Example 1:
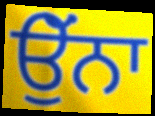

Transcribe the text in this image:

ਉਂੱਨਾ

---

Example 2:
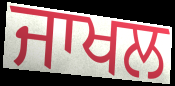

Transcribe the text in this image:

ਜਾਖਲ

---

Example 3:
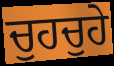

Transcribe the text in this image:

ਚੁਹਚੁਹੇ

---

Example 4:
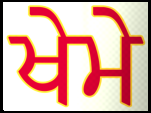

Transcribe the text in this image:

ਖੇਮੇ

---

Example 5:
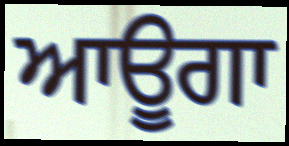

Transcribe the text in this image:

ਆਊਗਾ